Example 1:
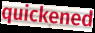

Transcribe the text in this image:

quickened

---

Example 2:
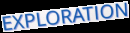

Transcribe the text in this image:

EXPLORATION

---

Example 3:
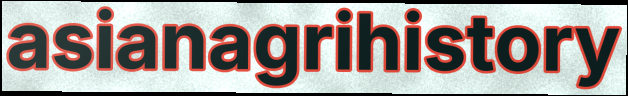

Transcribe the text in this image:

asianagrihistory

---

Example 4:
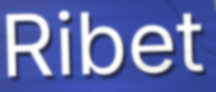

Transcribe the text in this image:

Ribet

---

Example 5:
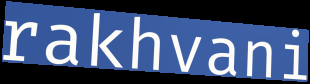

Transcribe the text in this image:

rakhvani